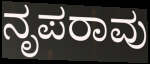
ನೃಪರಾವು